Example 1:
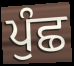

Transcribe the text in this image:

ਪੁੰਛ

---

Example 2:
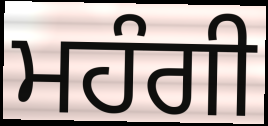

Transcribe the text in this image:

ਮਹੰਗੀ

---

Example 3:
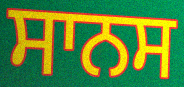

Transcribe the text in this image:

ਸਾਨਸ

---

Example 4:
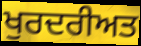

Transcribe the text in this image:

ਖੁਰਦਰੀਅਤ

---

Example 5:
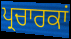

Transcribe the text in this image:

ਪ੍ਰਚਾਰਕਾਂ